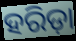
ହରିଡ଼ା